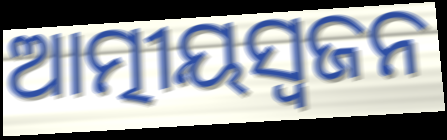
ଆତ୍ମୀୟସ୍ୱଜନ